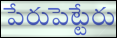
పేరుపెట్టేరు